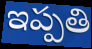
ఇప్పతి